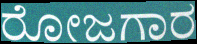
ರೋಜಗಾರ